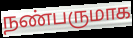
நண்பருமாக